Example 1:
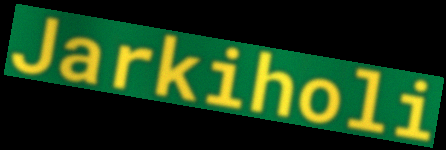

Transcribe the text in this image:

Jarkiholi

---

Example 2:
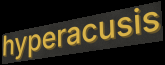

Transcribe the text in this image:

hyperacusis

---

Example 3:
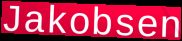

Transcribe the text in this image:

Jakobsen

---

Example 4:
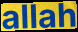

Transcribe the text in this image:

allah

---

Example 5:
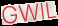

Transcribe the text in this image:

GWIL